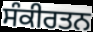
ਸੰਕੀਰਤਨ